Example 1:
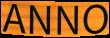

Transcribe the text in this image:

ANNO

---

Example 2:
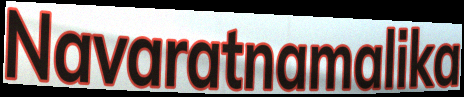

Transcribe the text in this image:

Navaratnamalika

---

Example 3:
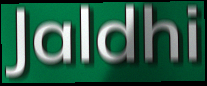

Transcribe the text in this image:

Jaldhi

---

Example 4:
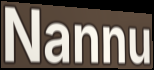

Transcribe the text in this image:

Nannu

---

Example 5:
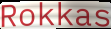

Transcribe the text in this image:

Rokkas